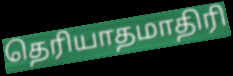
தெரியாதமாதிரி